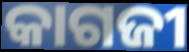
କାଗଜୀ